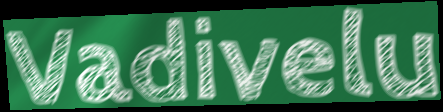
Vadivelu